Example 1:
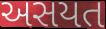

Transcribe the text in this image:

અસયત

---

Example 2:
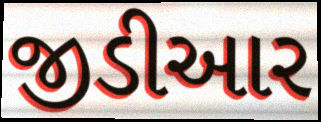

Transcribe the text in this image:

જીડીઆર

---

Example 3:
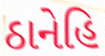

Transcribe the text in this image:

ઠાનેહિ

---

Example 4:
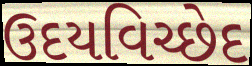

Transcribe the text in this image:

ઉદયવિચ્છેદ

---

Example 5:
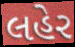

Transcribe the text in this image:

લહેર